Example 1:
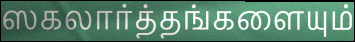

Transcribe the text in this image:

ஸகலார்த்தங்களையும்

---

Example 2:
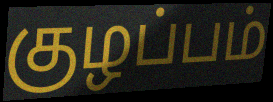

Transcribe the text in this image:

குழப்பம்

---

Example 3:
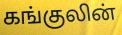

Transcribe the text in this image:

கங்குலின்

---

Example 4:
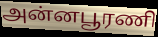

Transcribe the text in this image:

அன்னபூரணி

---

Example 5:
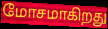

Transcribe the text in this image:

மோசமாகிறது